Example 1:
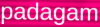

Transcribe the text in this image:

padagam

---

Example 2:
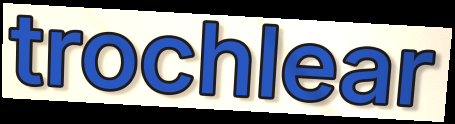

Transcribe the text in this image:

trochlear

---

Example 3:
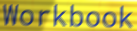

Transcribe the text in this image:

Workbook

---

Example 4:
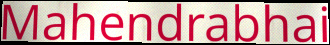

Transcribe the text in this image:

Mahendrabhai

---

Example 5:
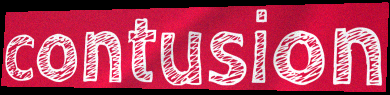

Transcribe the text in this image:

contusion